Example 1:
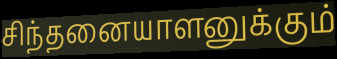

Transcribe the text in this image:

சிந்தனையாளனுக்கும்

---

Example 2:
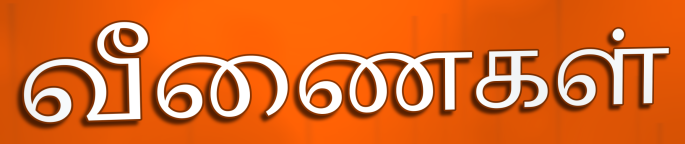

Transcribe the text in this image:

வீணைகள்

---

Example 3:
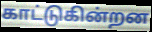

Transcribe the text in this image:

காட்டுகின்றன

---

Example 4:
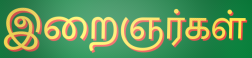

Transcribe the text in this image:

இறைஞர்கள்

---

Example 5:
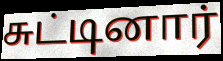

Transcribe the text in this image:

சுட்டினார்